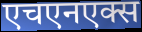
एचएनएक्स